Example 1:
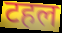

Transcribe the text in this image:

टहल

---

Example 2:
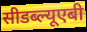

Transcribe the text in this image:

सीडब्ल्यूएबी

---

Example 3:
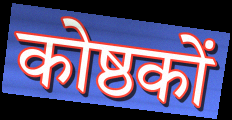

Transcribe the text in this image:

कोष्ठकों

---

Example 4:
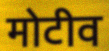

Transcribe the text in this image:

मोटीव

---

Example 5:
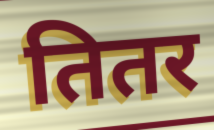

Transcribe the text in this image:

तितर